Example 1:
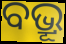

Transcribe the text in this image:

ବଭ୍ରୂ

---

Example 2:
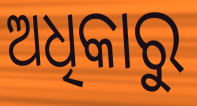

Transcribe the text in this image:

ଅଧିକାରୁ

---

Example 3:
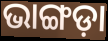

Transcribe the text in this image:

ଭାଙ୍ଗଡ଼ା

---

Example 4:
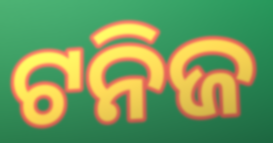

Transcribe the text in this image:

ଟନିଜ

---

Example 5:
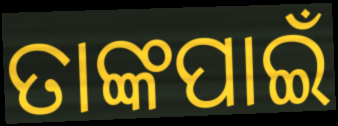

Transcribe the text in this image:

ତାଙ୍କପାଇଁ